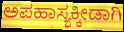
ಅಪಹಾಸ್ಯಕ್ಕೀಡಾಗಿ